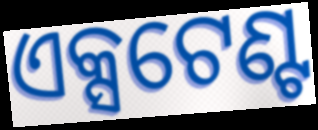
ଏକ୍ସଟେଣ୍ଟ